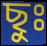
ছুঃ